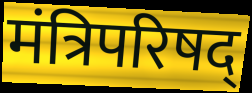
मंत्रिपरिषद्